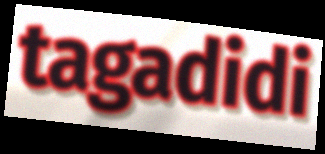
tagadidi